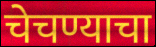
चेचण्याचा